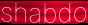
shabdo